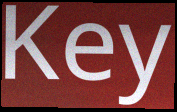
Key